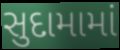
સુદામામાં